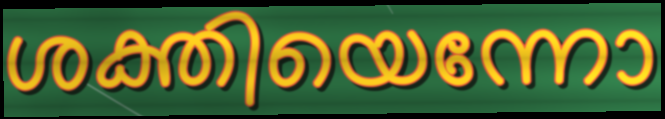
ശക്തിയെന്നോ